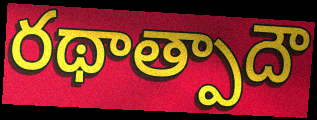
రథాత్పాదౌ